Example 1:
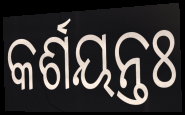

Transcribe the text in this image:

କର୍ଶୟନ୍ତଃ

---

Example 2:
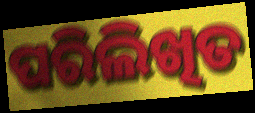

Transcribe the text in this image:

ପରିଲିଖିତ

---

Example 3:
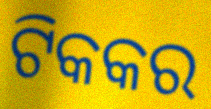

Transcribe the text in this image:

ଟିକକର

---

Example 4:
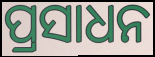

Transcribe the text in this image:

ପ୍ରସାଧନ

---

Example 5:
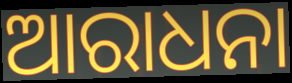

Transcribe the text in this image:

ଆରାଧନା